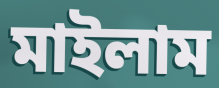
মাইলাম